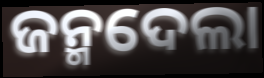
ଜନ୍ମଦେଲା